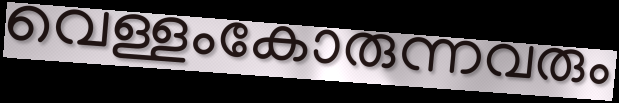
വെള്ളംകോരുന്നവരും